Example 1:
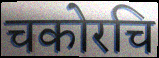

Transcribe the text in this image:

चकोरचि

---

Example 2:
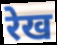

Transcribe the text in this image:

रेख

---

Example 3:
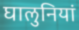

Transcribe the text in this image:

घालुनियां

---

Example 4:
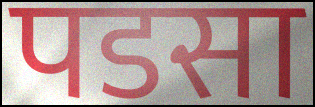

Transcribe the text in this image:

पडसा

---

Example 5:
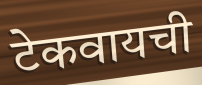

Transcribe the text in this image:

टेकवायची